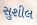
સુશીલ